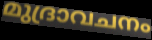
മുദ്രാവചനം